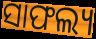
ସାଫଲ୍ଯ